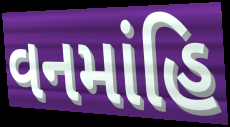
વનમાંહિ